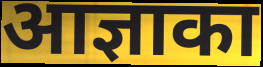
आज्ञाका